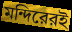
মন্দিরেরই